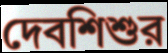
দেবশিশুর